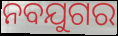
ନବଯୁଗର